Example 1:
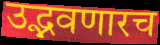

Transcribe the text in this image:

उद्भवणारच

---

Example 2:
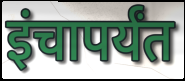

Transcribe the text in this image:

इंचापर्यंत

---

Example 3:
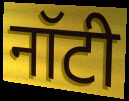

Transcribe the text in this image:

नॉटी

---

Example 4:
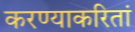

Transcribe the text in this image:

करण्याकरितां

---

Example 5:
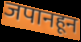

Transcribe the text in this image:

जपानहून